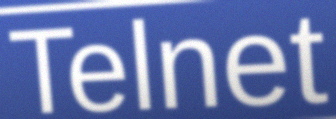
Telnet